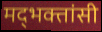
मद्भक्तांसी